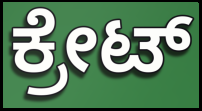
ಕ್ರೇಟ್